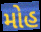
મોહ